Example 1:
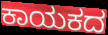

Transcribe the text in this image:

ಕಾಯಕದ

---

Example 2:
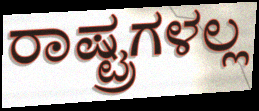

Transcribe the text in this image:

ರಾಷ್ಟ್ರಗಳಲ್ಲ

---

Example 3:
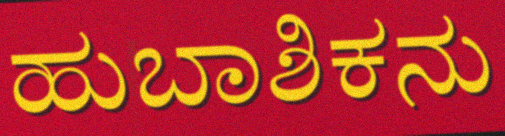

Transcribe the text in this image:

ಹುಬಾಶಿಕನು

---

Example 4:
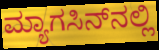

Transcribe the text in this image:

ಮ್ಯಾಗಸಿನ್‍ನಲ್ಲಿ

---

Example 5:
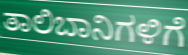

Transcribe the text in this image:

ತಾಲಿಬಾನಿಗಳಿಗೆ